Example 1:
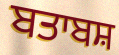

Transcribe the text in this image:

ਬਤਾਬਸ਼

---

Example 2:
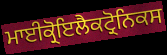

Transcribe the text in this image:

ਮਾਈਕ੍ਰੋਇਲੈਕਟ੍ਰੋਨਿਕਸ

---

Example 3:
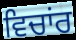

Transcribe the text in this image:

ਵਿਚਾਂਰ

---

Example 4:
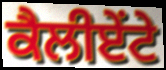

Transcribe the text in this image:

ਕੈਲੀਏਂਟੇ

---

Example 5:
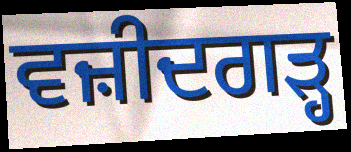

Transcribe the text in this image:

ਵਜ਼ੀਦਗੜ੍ਹ